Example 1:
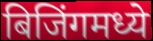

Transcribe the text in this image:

बिजिंगमध्ये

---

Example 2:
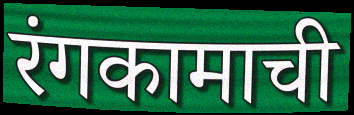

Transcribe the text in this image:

रंगकामाची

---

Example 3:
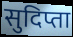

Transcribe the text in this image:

सुदिप्ता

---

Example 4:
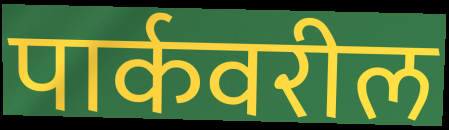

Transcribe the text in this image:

पार्कवरील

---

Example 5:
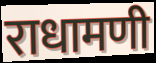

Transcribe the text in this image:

राधामणी